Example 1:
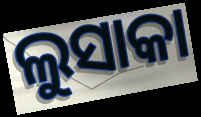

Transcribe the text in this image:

ଲୁସାକା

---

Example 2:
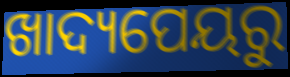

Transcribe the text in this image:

ଖାଦ୍ୟପେୟରୁ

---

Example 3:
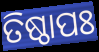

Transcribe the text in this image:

ତିଷ୍ଠାପଃ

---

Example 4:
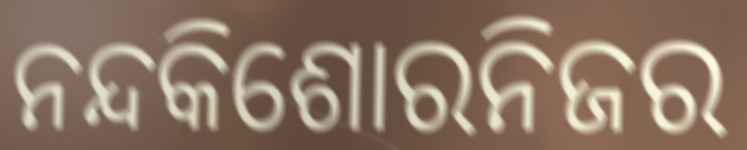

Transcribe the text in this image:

ନନ୍ଦକିଶୋରନିଜର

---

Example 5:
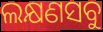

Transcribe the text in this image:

ଲକ୍ଷଣସବୁ